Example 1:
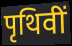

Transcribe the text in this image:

पृथिवीं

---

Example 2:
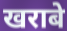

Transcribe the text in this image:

खराबे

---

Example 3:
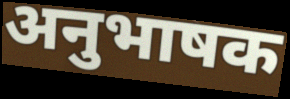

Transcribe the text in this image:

अनुभाषक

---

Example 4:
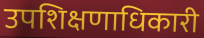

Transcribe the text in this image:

उपशिक्षणाधिकारी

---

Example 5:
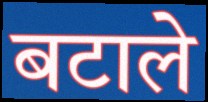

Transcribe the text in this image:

बटाले